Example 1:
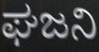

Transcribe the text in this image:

ಘಜನಿ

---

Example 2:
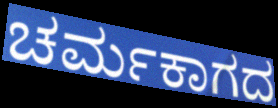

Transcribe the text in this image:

ಚರ್ಮಕಾಗದ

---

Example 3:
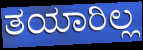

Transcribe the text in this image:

ತಯಾರಿಲ್ಲ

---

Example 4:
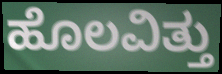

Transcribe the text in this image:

ಹೊಲವಿತ್ತು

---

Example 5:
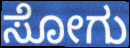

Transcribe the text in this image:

ಸೋಗು